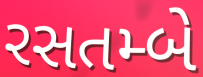
રસતમ્બે